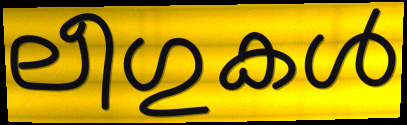
ലീഗുകൾ